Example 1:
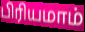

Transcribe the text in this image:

பிரியமாம்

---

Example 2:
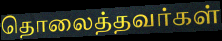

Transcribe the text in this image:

தொலைத்தவர்கள்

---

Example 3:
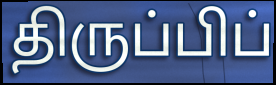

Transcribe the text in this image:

திருப்பிப்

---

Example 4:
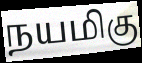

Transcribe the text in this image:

நயமிகு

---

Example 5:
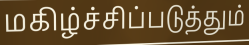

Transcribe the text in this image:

மகிழ்ச்சிப்படுத்தும்